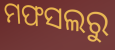
ମଫସଲରୁ